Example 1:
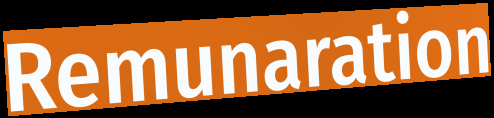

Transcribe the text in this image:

Remunaration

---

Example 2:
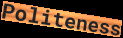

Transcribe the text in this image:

Politeness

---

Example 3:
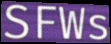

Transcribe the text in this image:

SFWs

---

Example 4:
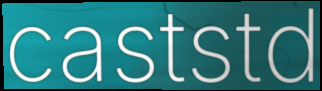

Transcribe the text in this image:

caststd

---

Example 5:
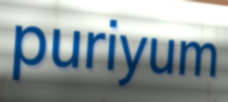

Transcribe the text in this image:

puriyum